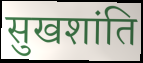
सुखशांति